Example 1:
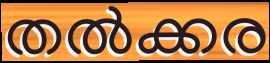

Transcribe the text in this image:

തൽക്കര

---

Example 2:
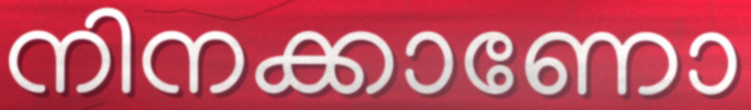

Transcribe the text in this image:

നിനക്കാണോ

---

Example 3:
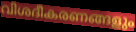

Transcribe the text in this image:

വിശദീകരണങ്ങളും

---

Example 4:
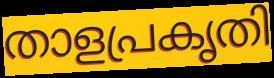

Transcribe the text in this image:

താളപ്രകൃതി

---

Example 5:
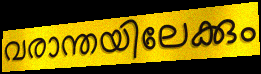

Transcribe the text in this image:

വരാന്തയിലേക്കും